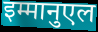
इम्मानुएल